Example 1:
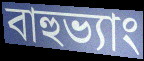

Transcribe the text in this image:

বাহুভ্যাং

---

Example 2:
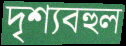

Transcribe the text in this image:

দৃশ্যবহুল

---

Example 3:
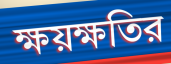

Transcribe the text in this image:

ক্ষয়ক্ষতির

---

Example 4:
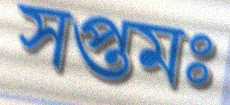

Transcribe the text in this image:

সপ্তমঃ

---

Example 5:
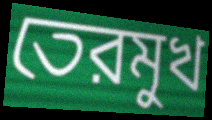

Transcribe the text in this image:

তেরমুখ